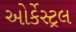
ઓર્કેસ્ટ્રલ